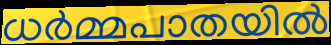
ധർമ്മപാതയിൽ